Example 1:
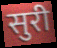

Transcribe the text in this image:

सुरी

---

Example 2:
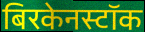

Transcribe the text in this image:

बिरकेनस्टॉक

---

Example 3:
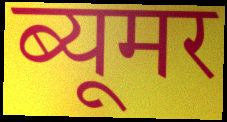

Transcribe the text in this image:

ब्यूमर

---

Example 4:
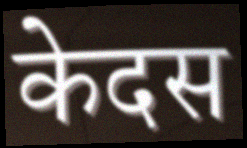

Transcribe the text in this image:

केदस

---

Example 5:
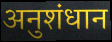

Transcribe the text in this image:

अनुशंधान